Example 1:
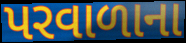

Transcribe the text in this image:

પરવાળાના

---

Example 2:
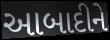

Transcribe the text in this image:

આબાદીને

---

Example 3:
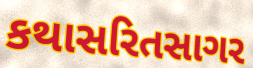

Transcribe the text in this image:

કથાસરિતસાગર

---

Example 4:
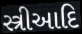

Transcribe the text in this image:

સ્ત્રીઆદિ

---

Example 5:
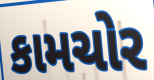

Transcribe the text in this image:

કામચોર